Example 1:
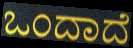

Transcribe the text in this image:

ಒಂದಾದೆ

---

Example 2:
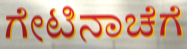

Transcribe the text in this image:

ಗೇಟಿನಾಚೆಗೆ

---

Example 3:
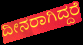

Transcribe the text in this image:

ದೀನರಾಗಿದ್ದರೆ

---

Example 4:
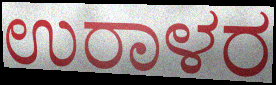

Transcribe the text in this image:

ಉರಾಳರ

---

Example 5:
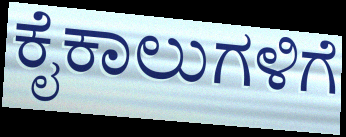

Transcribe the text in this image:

ಕೈಕಾಲುಗಳಿಗೆ